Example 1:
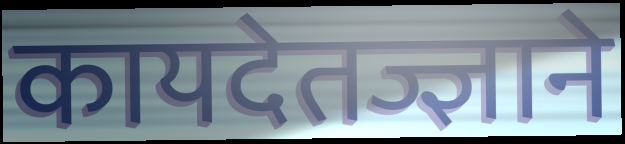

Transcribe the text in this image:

कायदेतज्ज्ञाने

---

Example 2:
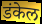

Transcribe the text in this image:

डंकेल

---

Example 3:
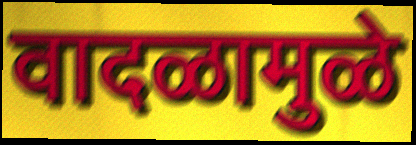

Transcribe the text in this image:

वादळामुळे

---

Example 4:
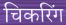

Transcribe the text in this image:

चिकरिंग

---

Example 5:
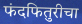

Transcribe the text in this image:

फंदफितुरीचा